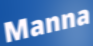
Manna